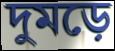
দুমড়ে